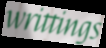
writtings